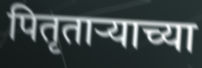
पितृताऱ्याच्या